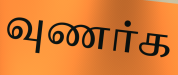
வுணர்க